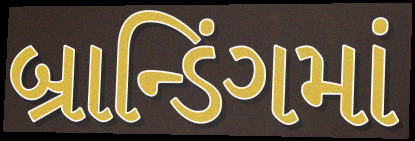
બ્રાન્ડિંગમાં